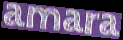
amara